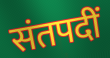
संतपदीं